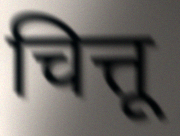
चित्तू